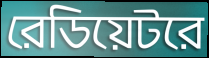
রেডিয়েটরে